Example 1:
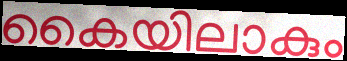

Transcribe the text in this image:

കൈയിലാകും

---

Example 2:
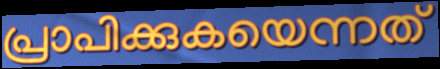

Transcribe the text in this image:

പ്രാപിക്കുകയെന്നത്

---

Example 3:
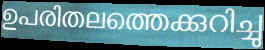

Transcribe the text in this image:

ഉപരിതലത്തെക്കുറിച്ചു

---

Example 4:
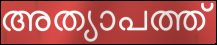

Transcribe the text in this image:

അത്യാപത്ത്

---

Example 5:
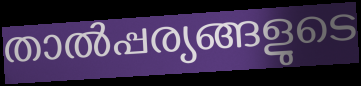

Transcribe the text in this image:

താൽപ്പര്യങ്ങളുടെ